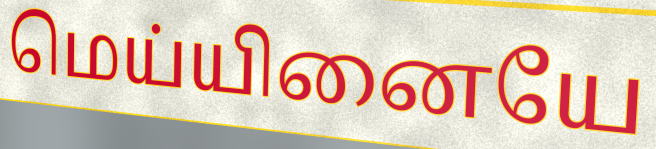
மெய்யினையே